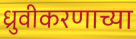
ध्रुवीकरणाच्या